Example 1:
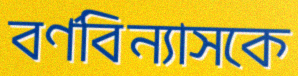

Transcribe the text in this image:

বর্ণবিন্যাসকে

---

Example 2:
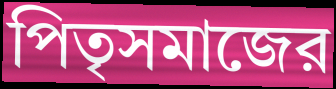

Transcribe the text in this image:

পিতৃসমাজের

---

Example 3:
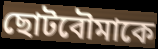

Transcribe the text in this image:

ছোটবৌমাকে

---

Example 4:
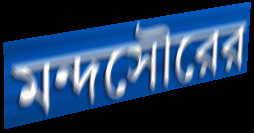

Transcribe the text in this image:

মন্দসৌরের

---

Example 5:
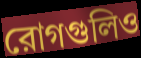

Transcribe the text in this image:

রোগগুলিও